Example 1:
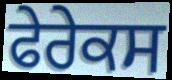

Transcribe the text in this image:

ਫੇਰੇਕਸ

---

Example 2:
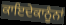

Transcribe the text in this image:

ਕਾਇਦੇਕਾਨੂੰਨਾਂ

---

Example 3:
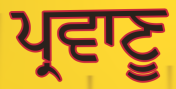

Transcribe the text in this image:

ਪ੍ਰਵਾਣੂ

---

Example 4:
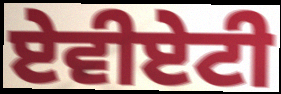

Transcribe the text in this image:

ਏਵੀਏਟੀ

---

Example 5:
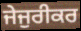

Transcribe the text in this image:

ਜੇਜੁਰੀਕਰ